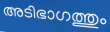
അടിഭാഗത്തും